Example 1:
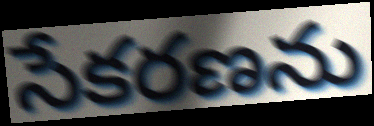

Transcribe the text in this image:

సేకరణను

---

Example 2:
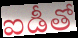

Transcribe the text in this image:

ఐడీతో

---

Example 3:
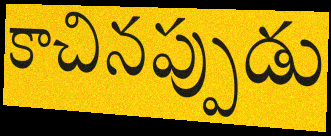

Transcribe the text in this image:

కాచినప్పుడు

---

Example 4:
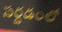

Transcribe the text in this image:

సర్దడంలో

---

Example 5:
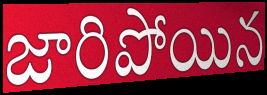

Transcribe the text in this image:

జారిపోయిన